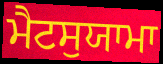
ਮੈਟਸੁਯਾਮਾ